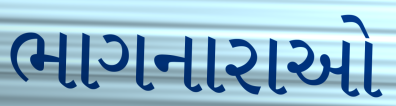
ભાગનારાઓ